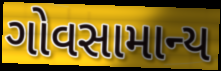
ગોવસામાન્ય